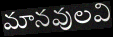
మానవులవి